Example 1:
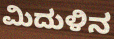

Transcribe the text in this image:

ಮಿದುಳಿನ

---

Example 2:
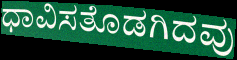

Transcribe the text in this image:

ಧಾವಿಸತೊಡಗಿದವು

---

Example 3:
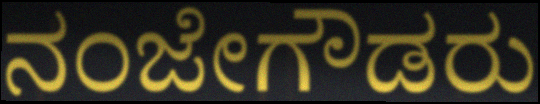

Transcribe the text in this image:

ನಂಜೇಗೌಡರು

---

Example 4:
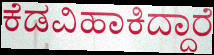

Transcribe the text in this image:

ಕೆಡವಿಹಾಕಿದ್ದಾರೆ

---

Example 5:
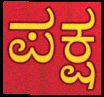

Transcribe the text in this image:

ಪಕ್ಷ